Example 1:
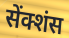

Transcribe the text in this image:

सेंक्शंस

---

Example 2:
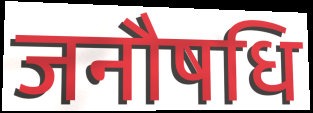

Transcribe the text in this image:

जनौषधि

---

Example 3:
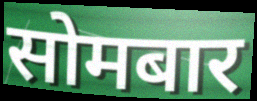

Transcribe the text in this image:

सोमबार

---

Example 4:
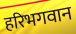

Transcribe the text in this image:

हरिभगवान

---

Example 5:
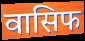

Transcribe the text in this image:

वासिफ